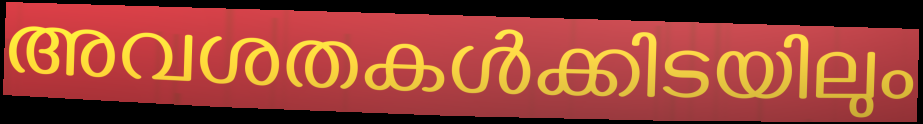
അവശതകൾക്കിടയിലും